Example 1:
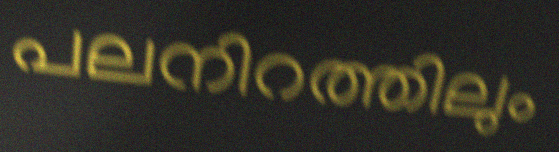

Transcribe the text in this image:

പലനിറത്തിലും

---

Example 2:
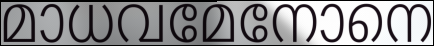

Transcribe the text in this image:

മാധവമേനോനെ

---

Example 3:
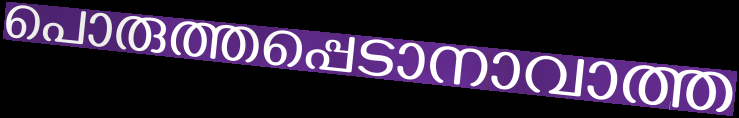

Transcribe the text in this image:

പൊരുത്തപ്പെടാനാവാത്ത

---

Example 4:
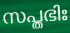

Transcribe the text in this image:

സപ്തഭിഃ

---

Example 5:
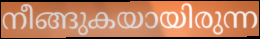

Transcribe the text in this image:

നീങ്ങുകയായിരുന്ന